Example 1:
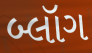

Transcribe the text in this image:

બ્લૉગ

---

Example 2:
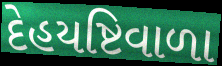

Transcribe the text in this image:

દેહયષ્ટિવાળા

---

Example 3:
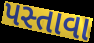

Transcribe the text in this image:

પસ્તાવા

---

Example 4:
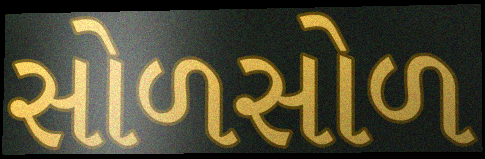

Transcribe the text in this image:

સોળસોળ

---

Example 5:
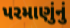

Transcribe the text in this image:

પરમાણુંનું